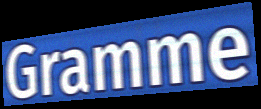
Gramme